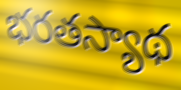
భరతస్యాథ